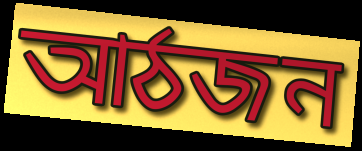
আঠজন